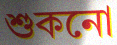
শুকনো